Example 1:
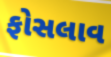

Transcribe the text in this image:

ફોસલાવ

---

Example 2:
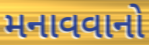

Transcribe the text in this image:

મનાવવાનો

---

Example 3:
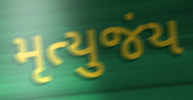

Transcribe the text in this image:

મૃત્યુજંય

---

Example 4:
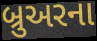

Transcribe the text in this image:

બ્રુઅરના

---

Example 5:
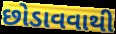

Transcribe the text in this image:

છોડાવવાથી